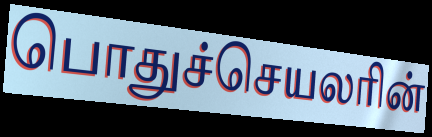
பொதுச்செயலரின்